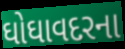
ઘોઘાવદરના